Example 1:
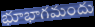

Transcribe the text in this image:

భూభాగమందు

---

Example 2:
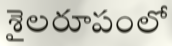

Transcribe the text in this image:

శైలరూపంలో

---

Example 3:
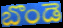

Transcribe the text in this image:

బొండె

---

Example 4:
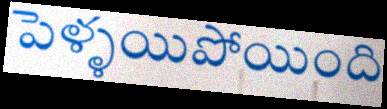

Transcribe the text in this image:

పెళ్ళయిపోయింది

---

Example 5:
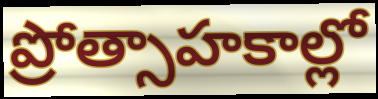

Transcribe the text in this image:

ప్రోత్సాహకాల్లో